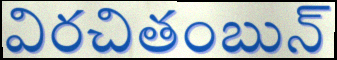
విరచితంబున్